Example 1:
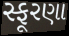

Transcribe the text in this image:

સ્ફૂરણા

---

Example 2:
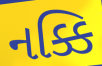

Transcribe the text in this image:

નક્કિ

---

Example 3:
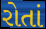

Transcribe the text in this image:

રોતાં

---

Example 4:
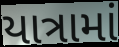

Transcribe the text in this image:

યાત્રામાં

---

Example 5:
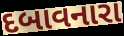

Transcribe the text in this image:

દબાવનારા